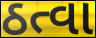
ઠત્વા